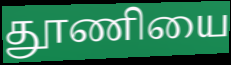
தூணியை